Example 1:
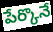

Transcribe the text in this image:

పేర్కొనే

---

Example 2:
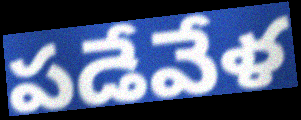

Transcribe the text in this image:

పడేవేళ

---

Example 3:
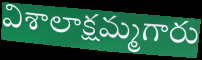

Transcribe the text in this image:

విశాలాక్షమ్మగారు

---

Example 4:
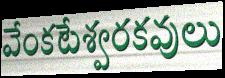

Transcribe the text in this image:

వేంకటేశ్వరకవులు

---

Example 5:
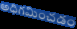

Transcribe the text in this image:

అధిగమించడం